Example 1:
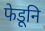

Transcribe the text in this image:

फेडूनि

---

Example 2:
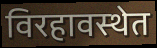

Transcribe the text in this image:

विरहावस्थेत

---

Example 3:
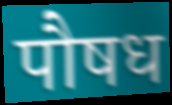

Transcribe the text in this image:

पौषध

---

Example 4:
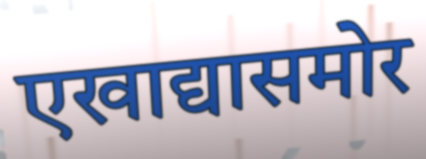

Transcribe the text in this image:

एखाद्यासमोर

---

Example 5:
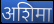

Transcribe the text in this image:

अशिमा